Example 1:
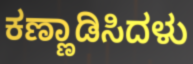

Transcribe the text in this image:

ಕಣ್ಣಾಡಿಸಿದಳು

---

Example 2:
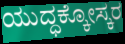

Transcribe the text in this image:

ಯುದ್ಧಕ್ಕೋಸ್ಕರ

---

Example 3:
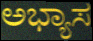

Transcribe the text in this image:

ಅಭ್ಯಾಸ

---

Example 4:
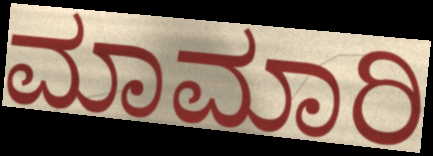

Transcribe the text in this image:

ಮಾಮಾರಿ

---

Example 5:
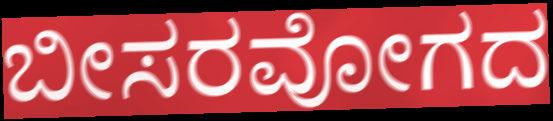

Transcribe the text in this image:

ಬೀಸರವೋಗದ